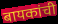
बायकांची